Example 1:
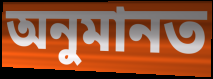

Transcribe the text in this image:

অনুমানত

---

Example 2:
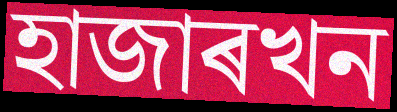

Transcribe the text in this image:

হাজাৰখন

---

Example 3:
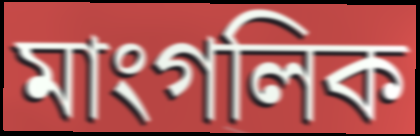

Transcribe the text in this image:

মাংগলিক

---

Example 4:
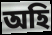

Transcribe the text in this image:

অহি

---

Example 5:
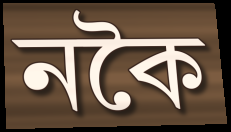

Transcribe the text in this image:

নকৈ